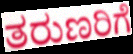
ತರುಣರಿಗೆ